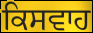
ਕਿਸਵਾਹ